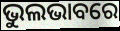
ଭୁଲଭାବରେ